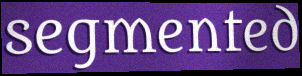
segmented